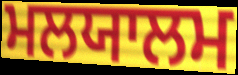
ਮਲਯਾਲਮ